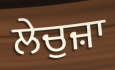
ਲੇਚੁਜ਼ਾ